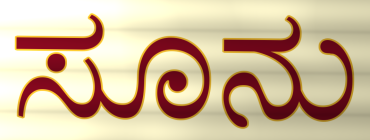
ಸೂನು